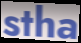
stha